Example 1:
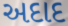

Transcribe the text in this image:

અદાદ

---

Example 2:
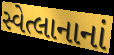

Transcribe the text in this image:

સ્વેત્લાનાનાં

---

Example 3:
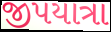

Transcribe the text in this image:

જીપયાત્રા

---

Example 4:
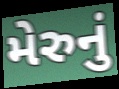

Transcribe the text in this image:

મેરુનું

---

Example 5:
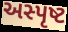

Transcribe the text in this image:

અસ્પૃષ્ટ